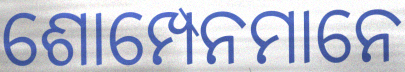
ଶୋମ୍ପେନମାନେ